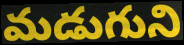
మడుగుని